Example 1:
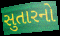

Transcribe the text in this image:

સુતારનો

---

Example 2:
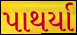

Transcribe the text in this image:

પાથર્યા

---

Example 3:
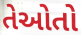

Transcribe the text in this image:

તેઓતો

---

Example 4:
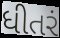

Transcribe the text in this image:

ધીતરં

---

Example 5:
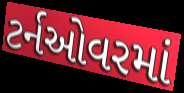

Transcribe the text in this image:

ટર્નઓવરમાં